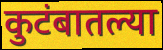
कुटंबातल्या